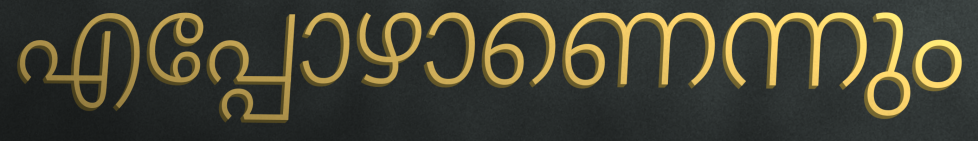
എപ്പോഴാണെന്നും